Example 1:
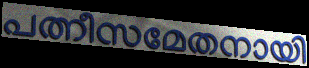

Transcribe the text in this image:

പത്നീസമേതനായി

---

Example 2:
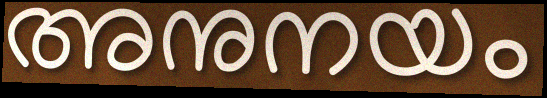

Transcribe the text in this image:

അനുനയം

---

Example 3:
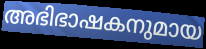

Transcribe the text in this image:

അഭിഭാഷകനുമായ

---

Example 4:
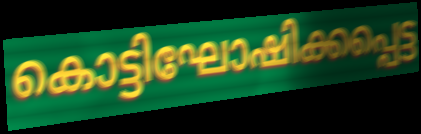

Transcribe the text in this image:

കൊട്ടിഘോഷിക്കപ്പെട്ട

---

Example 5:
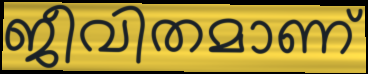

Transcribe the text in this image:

ജീവിതമാണ്